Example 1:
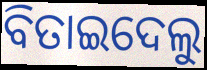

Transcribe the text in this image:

ବିତାଇଦେଲୁ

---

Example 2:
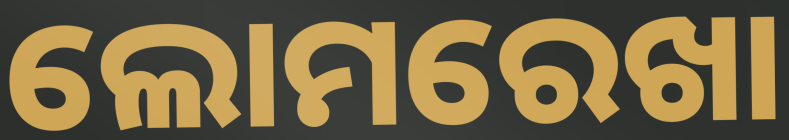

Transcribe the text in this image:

ଲୋମରେଖା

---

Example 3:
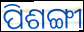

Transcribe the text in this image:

ପିଶଙ୍ଗୀ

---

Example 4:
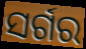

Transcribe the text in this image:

ସର୍ଗର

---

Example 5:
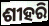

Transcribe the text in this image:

ଶୀହରି